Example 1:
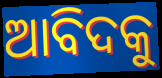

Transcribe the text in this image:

ଆବିଦକୁ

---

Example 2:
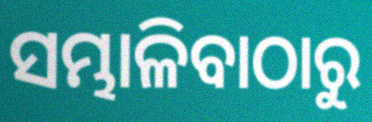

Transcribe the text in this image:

ସମ୍ଭାଳିବାଠାରୁ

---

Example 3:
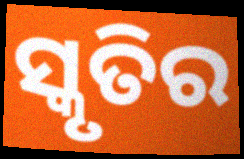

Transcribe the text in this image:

ସ୍କୃତିର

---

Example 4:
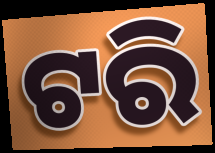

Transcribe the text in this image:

ଟରି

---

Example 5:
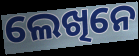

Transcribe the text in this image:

ଲେଖିନେ